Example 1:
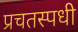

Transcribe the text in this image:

प्रचतस्पधी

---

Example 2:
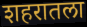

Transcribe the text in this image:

शहरातला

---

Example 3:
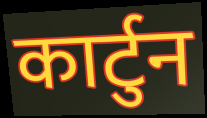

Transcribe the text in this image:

कार्टुन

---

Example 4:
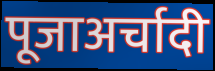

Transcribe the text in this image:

पूजाअर्चादी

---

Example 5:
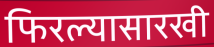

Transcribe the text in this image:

फिरल्यासारखी